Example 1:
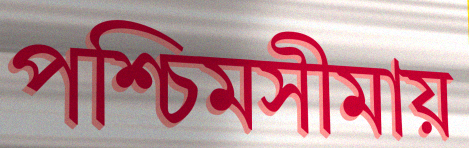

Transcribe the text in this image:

পশ্চিমসীমায়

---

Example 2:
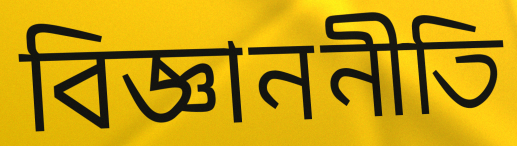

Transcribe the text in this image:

বিজ্ঞাননীতি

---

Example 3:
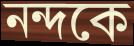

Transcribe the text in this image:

নন্দকে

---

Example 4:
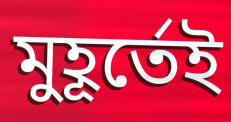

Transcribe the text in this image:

মুহূর্তেই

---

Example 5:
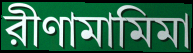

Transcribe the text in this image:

রীণামামিমা